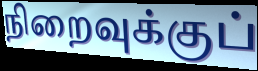
நிறைவுக்குப்